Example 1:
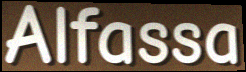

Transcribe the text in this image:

Alfassa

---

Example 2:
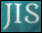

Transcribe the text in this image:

JIS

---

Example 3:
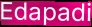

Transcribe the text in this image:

Edapadi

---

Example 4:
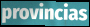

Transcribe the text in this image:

provincias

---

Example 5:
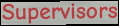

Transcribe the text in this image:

Supervisors